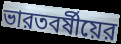
ভারতবর্ষীয়ের